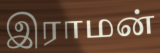
இராமன்